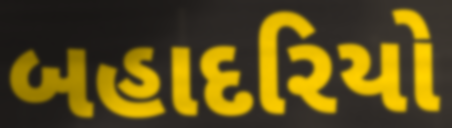
બહાદરિયો